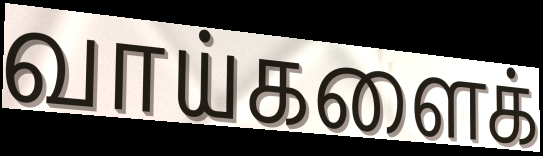
வாய்களைக்